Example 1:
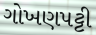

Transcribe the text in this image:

ગોખણપટ્ટી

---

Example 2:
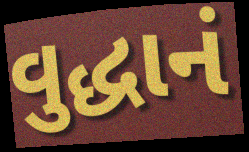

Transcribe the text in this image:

વુદ્ધાનં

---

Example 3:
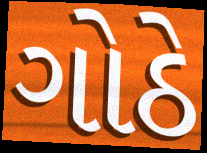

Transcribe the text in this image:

ગોઠે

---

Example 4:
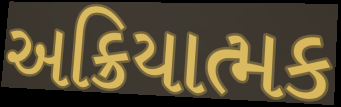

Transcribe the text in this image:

અક્રિયાત્મક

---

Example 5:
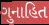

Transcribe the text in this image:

ગુનાહિત